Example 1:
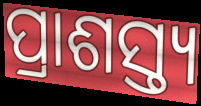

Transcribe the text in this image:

ପ୍ରାଶସ୍ତ୍ୟ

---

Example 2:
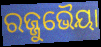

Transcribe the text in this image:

ରଜ୍ଜୁଭୈୟା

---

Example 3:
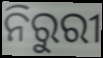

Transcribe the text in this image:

ନିରୁରୀ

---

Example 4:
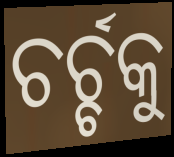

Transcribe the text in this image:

ଚର୍ଚ୍ଚକୁ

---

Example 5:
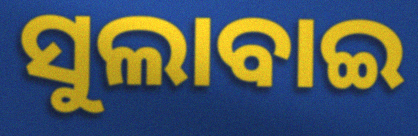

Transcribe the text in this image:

ସୁଲାବାଇ